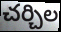
చర్చిల